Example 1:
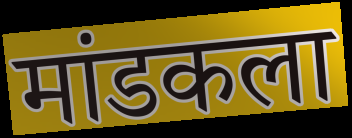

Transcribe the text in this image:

मांडकला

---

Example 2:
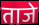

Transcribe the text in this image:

ताजे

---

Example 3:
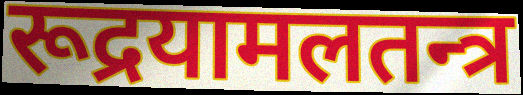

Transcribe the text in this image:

रूद्रयामलतन्त्र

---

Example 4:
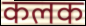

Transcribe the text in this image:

कलक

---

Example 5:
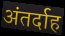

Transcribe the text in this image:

अंतर्दाह